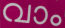
വാം